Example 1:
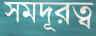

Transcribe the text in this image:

সমদূরত্ব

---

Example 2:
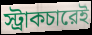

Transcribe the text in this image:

স্ট্রাকচারেই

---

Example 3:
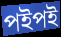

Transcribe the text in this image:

পইপই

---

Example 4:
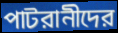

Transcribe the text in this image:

পাটরানীদের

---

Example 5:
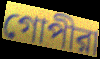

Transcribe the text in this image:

গোপীরা